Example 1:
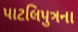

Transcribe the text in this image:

પાટલિપુત્રના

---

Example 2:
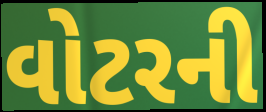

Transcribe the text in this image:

વોટરની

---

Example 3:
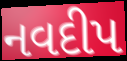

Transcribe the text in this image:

નવદીપ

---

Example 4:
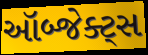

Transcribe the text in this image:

ઑબ્જેક્ટ્સ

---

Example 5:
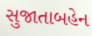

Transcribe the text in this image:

સુજાતાબહેન